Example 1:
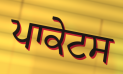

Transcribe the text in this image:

ਪਾਕੇਟਸ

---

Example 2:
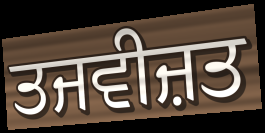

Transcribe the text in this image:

ਤਜਵੀਜ਼ਤ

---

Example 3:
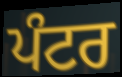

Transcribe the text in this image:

ਪੰਟਰ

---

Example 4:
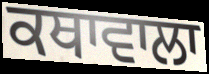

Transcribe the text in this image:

ਕਥਾਵਾਲਾ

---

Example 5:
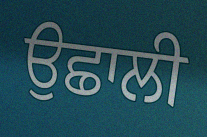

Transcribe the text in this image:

ਉਛਾਲੀ